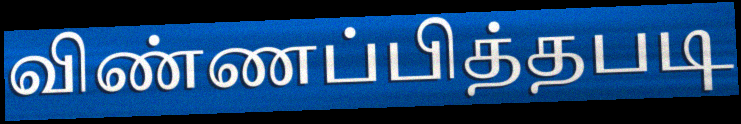
விண்ணப்பித்தபடி